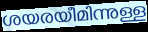
ശയരയീമിന്നുള്ള